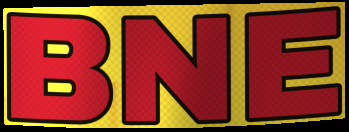
BNE